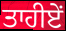
ਤਾਹੀਏਂ